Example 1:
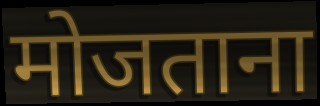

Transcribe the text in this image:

मोजताना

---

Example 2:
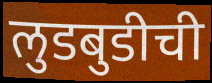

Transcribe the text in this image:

लुडबुडीची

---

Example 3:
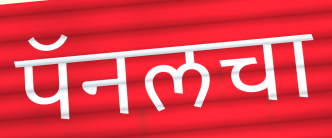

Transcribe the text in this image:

पॅनलचा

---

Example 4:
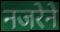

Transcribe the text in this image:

नजरेने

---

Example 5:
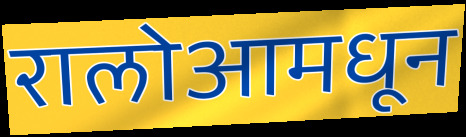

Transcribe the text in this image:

रालोआमधून